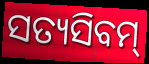
ସତ୍ୟସିବମ୍